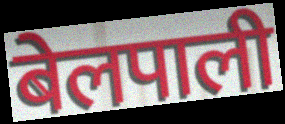
बेलपाली